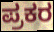
ಪ್ರಕರ